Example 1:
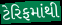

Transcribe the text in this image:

ટેરિફમાંથી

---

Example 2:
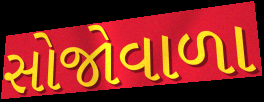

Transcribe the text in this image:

સોજોવાળા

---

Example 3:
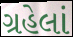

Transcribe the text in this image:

ગ્રહેલાં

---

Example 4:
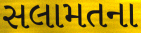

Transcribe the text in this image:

સલામતના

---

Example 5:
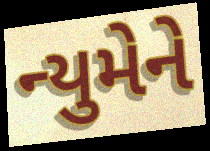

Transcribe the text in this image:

ન્યુમેને